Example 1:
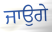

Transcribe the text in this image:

ਜਾਉਗੇ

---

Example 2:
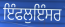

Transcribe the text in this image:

ਇੰਫਲੁਇੰਸਰ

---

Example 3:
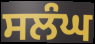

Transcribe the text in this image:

ਸਲੰਘ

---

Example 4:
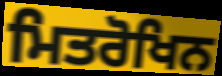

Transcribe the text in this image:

ਮਿਤਰੋਖਿਨ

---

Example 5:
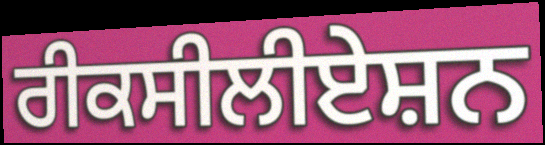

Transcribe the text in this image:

ਰੀਕਸੀਲੀਏਸ਼ਨ